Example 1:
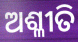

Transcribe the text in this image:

ଅଶ୍ଳୀତି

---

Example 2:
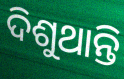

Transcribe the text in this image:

ଦିଶୁଥାନ୍ତି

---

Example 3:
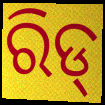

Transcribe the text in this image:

ରିଡ୍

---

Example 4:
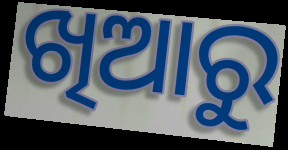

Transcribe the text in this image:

ଖିଆରୁ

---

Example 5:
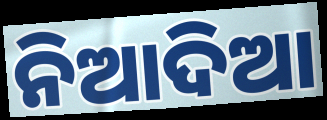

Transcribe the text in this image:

ନିଆଦିଆ